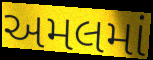
અમલમાં